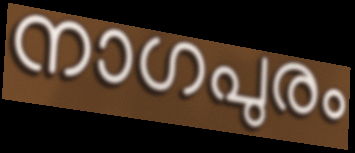
നാഗപുരം